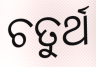
ଚତୁର୍ଥ